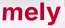
mely